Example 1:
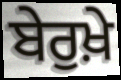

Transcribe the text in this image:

ਬੇਰੁਖ਼ੇ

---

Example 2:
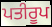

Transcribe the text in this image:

ਪਤੀਰੂਪ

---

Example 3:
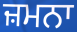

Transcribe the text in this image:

ਜ਼ਮਨਾ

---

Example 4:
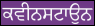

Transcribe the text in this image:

ਕਵੀਨਸਟਾਉਨ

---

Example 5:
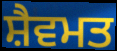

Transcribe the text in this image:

ਸ਼ੈਵਮਤ